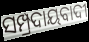
ସମ୍ପ୍ରଦାୟବାଦୀ